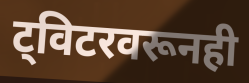
ट्विटरवरूनही